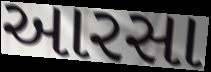
આરસા